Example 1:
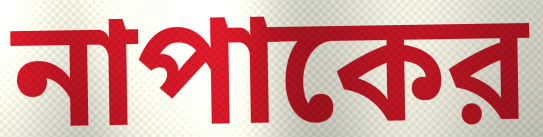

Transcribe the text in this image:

নাপাকের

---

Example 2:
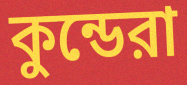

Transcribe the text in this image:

কুন্ডেরা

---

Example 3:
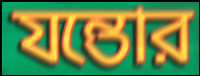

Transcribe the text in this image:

যন্তোর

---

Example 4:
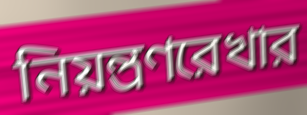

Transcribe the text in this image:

নিয়ন্ত্রণরেখার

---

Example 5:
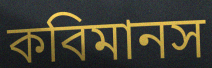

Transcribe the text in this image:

কবিমানস